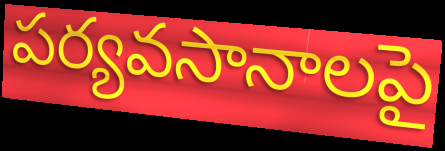
పర్యవసానాలపై